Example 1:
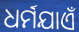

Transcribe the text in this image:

ଧର୍ମଯାଏଁ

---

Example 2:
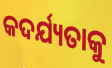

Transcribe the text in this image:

କଦର୍ଯ୍ୟତାକୁ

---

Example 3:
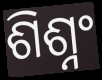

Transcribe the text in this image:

ଶିଶ୍ନଂ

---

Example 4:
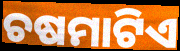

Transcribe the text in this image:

ଚଷମାଟିଏ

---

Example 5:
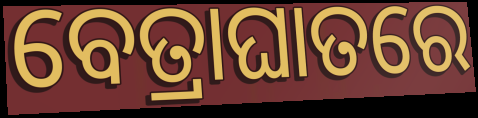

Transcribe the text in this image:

ବେତ୍ରାଘାତରେ